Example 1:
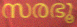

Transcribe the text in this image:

സരഭൂ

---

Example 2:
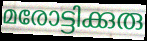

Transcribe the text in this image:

മരോട്ടിക്കുരു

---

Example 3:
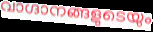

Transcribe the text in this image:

വാഗ്ദാനങ്ങളുടെയും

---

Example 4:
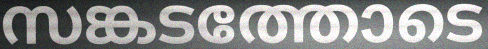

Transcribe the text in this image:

സങ്കടത്തോടെ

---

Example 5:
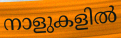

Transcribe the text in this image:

നാളുകളിൽ